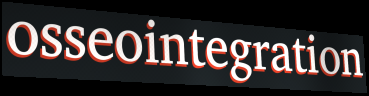
osseointegration